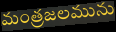
మంత్రజలమును